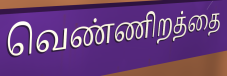
வெண்ணிறத்தை